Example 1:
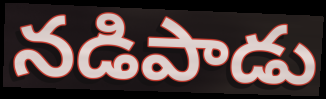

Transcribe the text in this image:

నడిపాడు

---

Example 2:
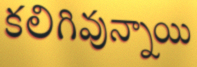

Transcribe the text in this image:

కలిగివున్నాయి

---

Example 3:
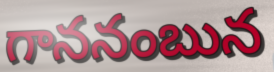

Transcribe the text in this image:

గాననంబున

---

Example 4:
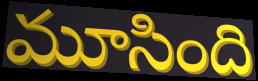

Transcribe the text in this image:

మూసింది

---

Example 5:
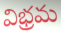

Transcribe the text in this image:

విభ్రమ